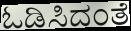
ಓಡಿಸಿದಂತೆ